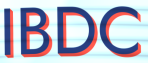
IBDC